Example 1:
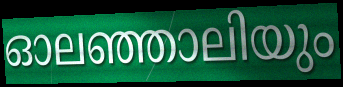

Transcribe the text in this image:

ഓലഞ്ഞാലിയും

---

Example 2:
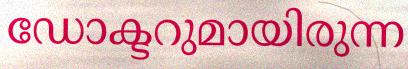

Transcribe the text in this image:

ഡോക്ടറുമായിരുന്ന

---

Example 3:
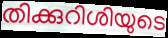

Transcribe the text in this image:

തിക്കുറിശിയുടെ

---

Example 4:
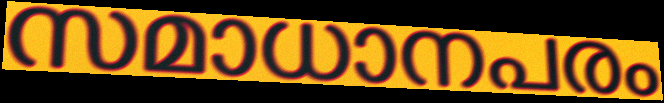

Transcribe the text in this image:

സമാധാനപരം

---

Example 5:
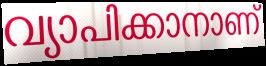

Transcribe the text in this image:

വ്യാപിക്കാനാണ്